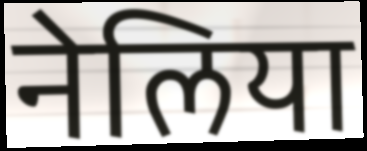
नेलिया